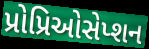
પ્રોપ્રિઓસેપ્શન